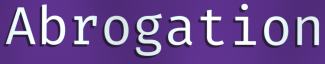
Abrogation